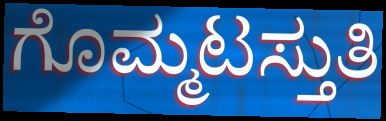
ಗೊಮ್ಮಟಸ್ತುತಿ